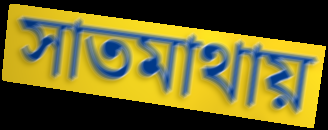
সাতমাথায়